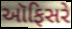
ઑફિસરે